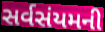
સર્વસંયમની